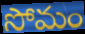
సోమం